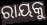
ରାୟକୁ